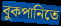
বুকপানিতে